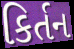
કિર્તન